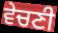
ਵੇਚਣੀ